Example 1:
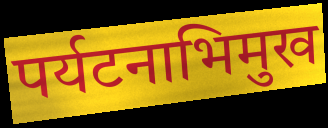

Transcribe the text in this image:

पर्यटनाभिमुख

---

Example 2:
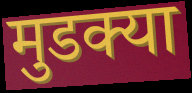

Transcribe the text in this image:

मुडक्या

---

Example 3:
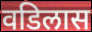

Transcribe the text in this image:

वडिलास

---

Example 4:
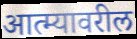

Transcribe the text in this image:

आत्म्यावरील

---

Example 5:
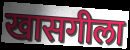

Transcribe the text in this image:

खासगीला